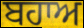
ਬਹਾਅ